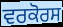
ਵਰਕੋਰਸ